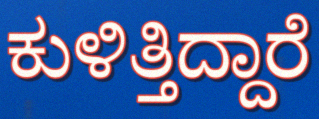
ಕುಳಿತ್ತಿದ್ದಾರೆ